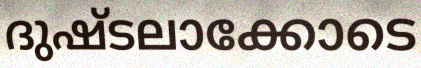
ദുഷ്ടലാക്കോടെ